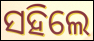
ସହିଲେ